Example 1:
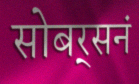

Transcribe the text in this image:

सोबर्सनं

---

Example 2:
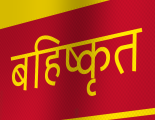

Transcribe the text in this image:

बहिष्कृत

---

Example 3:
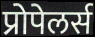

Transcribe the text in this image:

प्रोपेलर्स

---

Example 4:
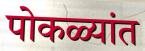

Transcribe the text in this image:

पोकळ्यांत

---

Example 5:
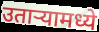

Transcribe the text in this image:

उताऱ्यामध्ये